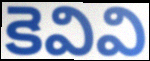
కెవివి